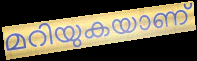
മറിയുകയാണ്